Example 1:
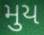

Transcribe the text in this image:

મુય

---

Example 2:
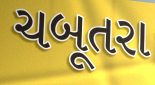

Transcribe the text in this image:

ચબૂતરા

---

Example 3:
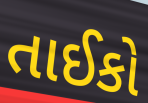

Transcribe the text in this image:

તાઈકો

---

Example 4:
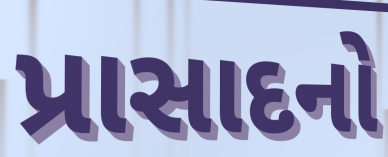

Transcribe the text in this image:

પ્રાસાદનો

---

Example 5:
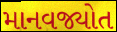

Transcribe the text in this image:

માનવજ્યોત